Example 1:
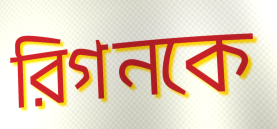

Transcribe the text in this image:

রিগনকে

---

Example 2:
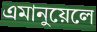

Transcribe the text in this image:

এমানুয়েলে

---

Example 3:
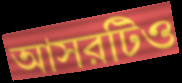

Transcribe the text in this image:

আসরটিও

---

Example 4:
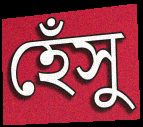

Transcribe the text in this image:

হেঁসু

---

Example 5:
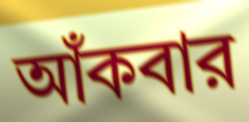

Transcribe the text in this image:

আঁকবার